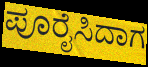
ಪೂರೈಸಿದಾಗ